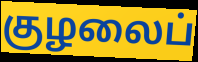
குழலைப்